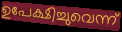
ഉപേക്ഷിച്ചുവെന്ന്